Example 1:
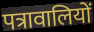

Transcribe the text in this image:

पत्रावालियों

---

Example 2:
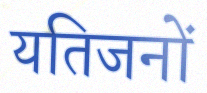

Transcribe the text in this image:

यतिजनों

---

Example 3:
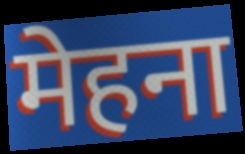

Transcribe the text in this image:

मेहना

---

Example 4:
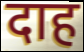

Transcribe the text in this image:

दाह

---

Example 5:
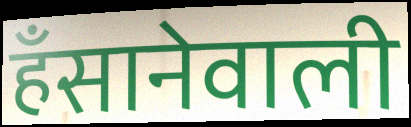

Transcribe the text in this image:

हँसानेवाली